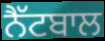
ਨੈੱਟਬਾਲ